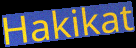
Hakikat